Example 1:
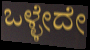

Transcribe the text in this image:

ಒಳ್ಳೇದೇ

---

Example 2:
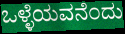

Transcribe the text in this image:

ಒಳ್ಳೆಯವನೆಂದು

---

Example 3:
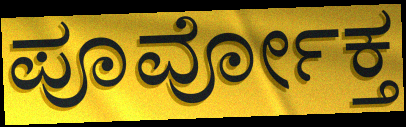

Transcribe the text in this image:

ಪೂರ್ವೋಕ್ತ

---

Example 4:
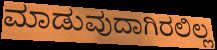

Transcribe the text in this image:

ಮಾಡುವುದಾಗಿರಲಿಲ್ಲ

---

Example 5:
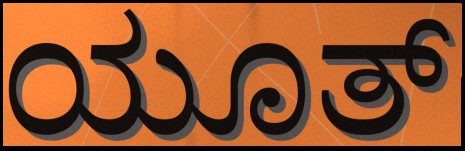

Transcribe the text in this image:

ಯೂತ್